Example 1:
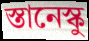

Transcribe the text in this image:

স্তানেস্কু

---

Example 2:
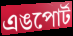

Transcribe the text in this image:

এঙপোর্ট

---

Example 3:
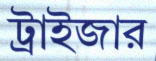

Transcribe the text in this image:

ট্রাইজার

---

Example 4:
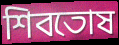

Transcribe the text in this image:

শিবতোষ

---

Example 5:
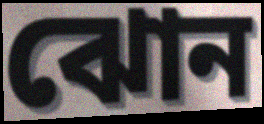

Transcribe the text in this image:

ঝোন